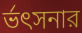
র্ভৎসনার